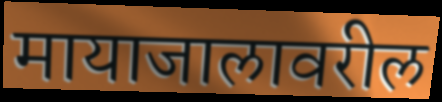
मायाजालावरील